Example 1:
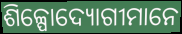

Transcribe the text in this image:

ଶିଳ୍ପୋଦ୍ୟୋଗୀମାନେ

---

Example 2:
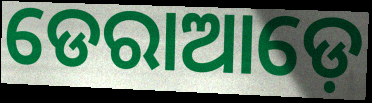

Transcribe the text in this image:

ଡେରାଆଡ଼େ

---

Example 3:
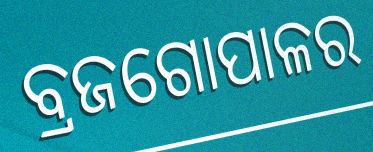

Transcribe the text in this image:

ବ୍ରଜଗୋପାଳର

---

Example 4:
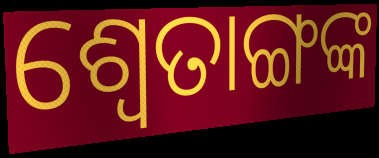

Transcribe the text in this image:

ଶ୍ବେତାଙ୍ଗଙ୍କ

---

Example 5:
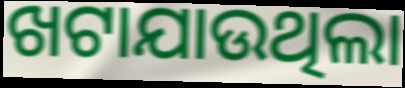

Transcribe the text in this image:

ଖଟାଯାଉଥିଲା